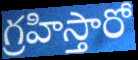
గ్రహిస్తారో